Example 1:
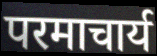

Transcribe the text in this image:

परमाचार्य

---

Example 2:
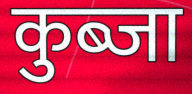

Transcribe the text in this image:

कुब्जा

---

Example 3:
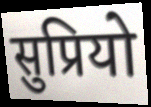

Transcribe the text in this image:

सुप्रियो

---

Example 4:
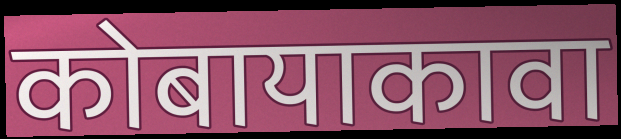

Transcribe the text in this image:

कोबायाकावा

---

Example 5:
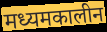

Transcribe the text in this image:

मध्यमकालीन